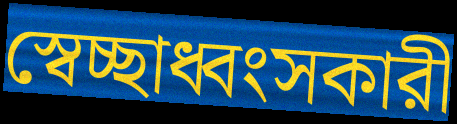
স্বেচ্ছাধ্বংসকারী